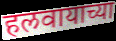
हलवायाच्या